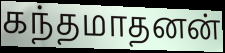
கந்தமாதனன்